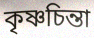
কৃষ্ণচিন্তা